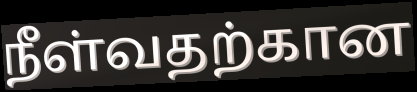
நீள்வதற்கான